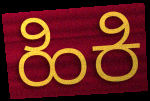
ಹಿಕಿ